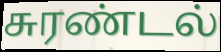
சுரண்டல்